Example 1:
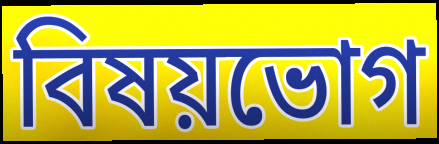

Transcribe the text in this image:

বিষয়ভোগ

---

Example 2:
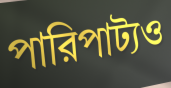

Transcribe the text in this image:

পারিপাট্যও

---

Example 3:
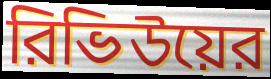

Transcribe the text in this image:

রিভিউয়ের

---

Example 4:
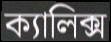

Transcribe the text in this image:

ক্যালিক্স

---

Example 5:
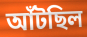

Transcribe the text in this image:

আঁটছিল